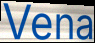
Vena